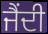
ਜੈਂਦੀ